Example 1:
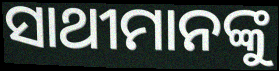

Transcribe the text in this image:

ସାଥୀମାନଙ୍କୁ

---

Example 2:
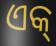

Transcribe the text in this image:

ଏକ୍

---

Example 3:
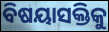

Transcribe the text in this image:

ବିଷୟାସକ୍ତିକୁ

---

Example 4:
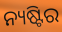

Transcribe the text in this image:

ନ୍ୟଷ୍ଟିର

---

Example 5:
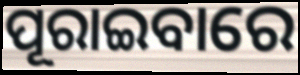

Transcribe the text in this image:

ପୂରାଇବାରେ